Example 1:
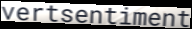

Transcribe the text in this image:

vertsentiment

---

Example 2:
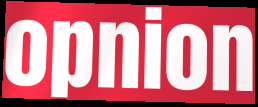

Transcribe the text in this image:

opnion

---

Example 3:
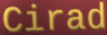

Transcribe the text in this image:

Cirad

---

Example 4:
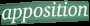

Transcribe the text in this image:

apposition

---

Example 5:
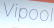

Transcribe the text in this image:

Vipool